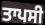
ਤਾਪਸੀ